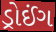
ડ્રોઈંગ